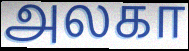
அலகா